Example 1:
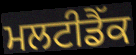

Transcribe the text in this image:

ਮਲਟੀਡੈੱਕ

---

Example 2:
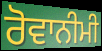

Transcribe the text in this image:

ਰੋਵਾਨੀਮੀ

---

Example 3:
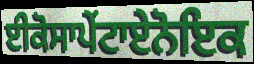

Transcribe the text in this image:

ਈਕੋਸਾਪੇਂਟਾਏਨੋਇਕ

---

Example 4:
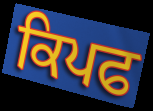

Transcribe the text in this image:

ਕਿਪਫ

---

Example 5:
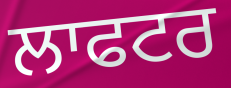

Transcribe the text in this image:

ਲਾਫਟਰ